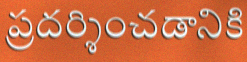
ప్రదర్శించడానికి